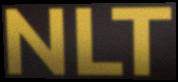
NLT